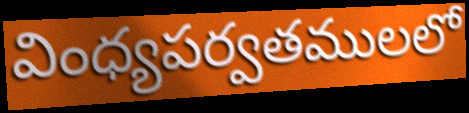
వింధ్యపర్వతములలో